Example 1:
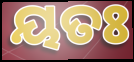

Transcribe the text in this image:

ୟତଃ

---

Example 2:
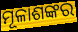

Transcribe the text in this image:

ମୂଳାଶଙ୍କର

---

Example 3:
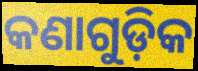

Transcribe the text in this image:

କଣାଗୁଡ଼ିକ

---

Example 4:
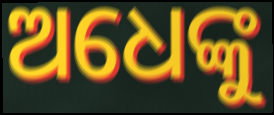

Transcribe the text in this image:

ଅଧେଙ୍କୁ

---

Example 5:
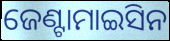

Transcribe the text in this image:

ଜେଣ୍ଟାମାଇସିନ